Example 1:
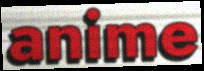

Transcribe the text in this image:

anime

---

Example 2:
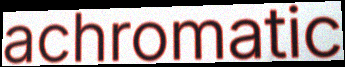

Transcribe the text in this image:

achromatic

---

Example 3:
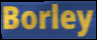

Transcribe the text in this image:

Borley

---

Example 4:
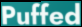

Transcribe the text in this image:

Puffed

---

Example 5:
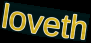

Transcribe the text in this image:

loveth